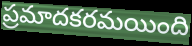
ప్రమాదకరమయింది